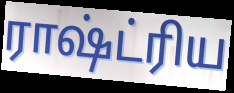
ராஷ்ட்ரிய